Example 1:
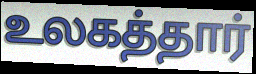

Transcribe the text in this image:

உலகத்தார்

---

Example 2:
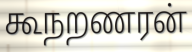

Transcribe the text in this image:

கூநறணரன்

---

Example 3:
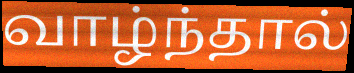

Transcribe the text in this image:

வாழ்ந்தால்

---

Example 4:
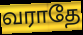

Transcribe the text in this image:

வராதே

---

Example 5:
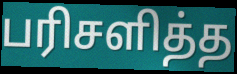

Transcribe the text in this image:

பரிசளித்த